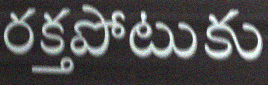
రక్తపోటుకు